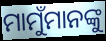
ମାମୁଁମାନଙ୍କୁ